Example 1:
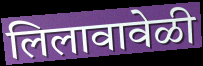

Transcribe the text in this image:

लिलावावेळी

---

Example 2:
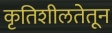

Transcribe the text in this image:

कृतिशीलतेतून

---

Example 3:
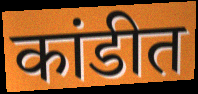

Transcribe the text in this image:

कांडीत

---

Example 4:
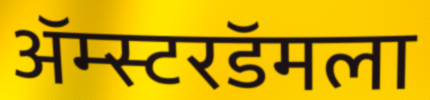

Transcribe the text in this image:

ॲम्स्टरडॅमला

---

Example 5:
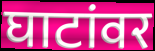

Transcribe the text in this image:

घाटांवर